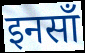
इनसाँ